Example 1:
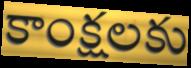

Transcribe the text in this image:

కాంక్షలకు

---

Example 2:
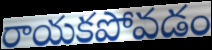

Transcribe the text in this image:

రాయకపోవడం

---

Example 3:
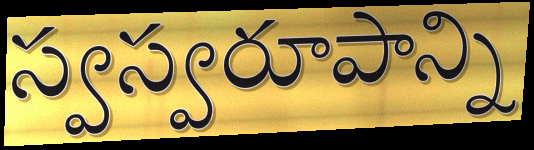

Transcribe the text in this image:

స్వస్వరూపాన్ని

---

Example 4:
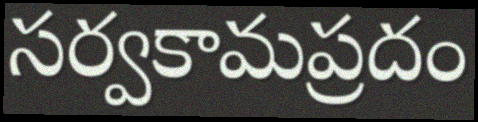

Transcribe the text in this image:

సర్వకామప్రదం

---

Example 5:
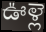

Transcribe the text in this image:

ఊళ్లె